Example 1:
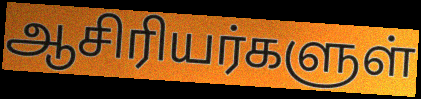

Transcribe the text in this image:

ஆசிரியர்களுள்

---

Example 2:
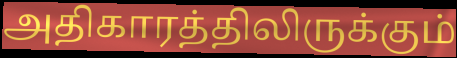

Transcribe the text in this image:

அதிகாரத்திலிருக்கும்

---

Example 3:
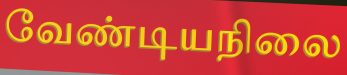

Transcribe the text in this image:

வேண்டியநிலை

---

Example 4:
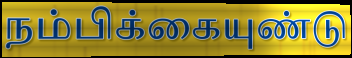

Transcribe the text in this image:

நம்பிக்கையுண்டு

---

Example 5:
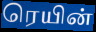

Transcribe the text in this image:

ரெயின்